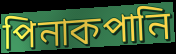
পিনাকপানি